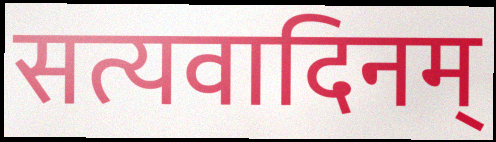
सत्यवादिनम्